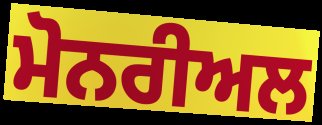
ਮੋਨਰੀਅਲ